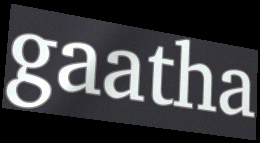
gaatha